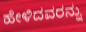
ಹೇಳಿದವರನ್ನು